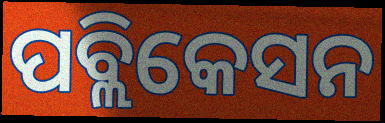
ପବ୍ଲିକେସନ